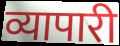
व्यापारी